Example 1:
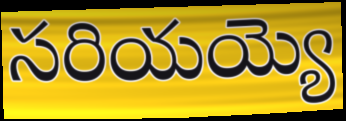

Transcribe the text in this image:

సరియయ్యె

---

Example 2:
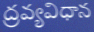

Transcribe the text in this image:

ద్రవ్యవిధాన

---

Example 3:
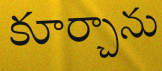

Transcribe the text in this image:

కూర్చాను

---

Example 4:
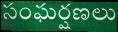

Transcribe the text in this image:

సంఘర్షణలు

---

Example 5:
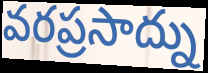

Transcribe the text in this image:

వరప్రసాద్ను